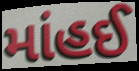
માંહઈ